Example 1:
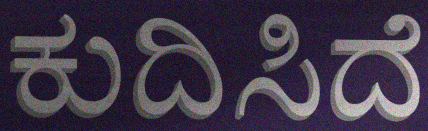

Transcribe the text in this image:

ಕುದಿಸಿದೆ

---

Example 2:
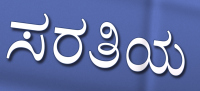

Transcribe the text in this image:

ಸರತಿಯ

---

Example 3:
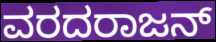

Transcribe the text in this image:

ವರದರಾಜನ್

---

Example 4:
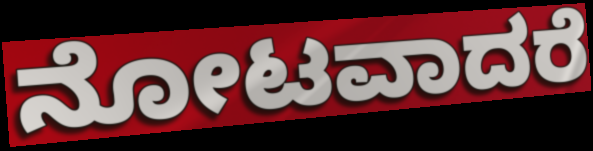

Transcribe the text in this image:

ನೋಟವಾದರೆ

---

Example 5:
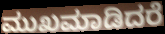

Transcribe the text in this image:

ಮುಖಮಾಡಿದರೆ